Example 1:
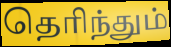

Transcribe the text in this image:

தெரிந்தும்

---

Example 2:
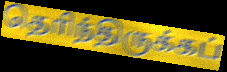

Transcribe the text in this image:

தெரிந்திருக்கப்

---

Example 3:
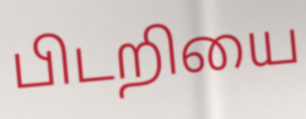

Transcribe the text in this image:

பிடறியை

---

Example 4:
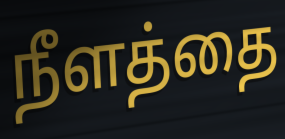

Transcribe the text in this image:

நீளத்தை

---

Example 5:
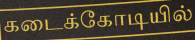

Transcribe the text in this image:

கடைக்கோடியில்